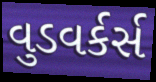
વુડવર્કર્સ